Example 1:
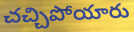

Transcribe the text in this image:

చచ్చిపోయారు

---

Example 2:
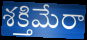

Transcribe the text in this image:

శక్తిమేరా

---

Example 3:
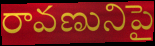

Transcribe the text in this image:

రావణునిపై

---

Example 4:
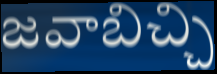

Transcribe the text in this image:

జవాబిచ్చి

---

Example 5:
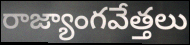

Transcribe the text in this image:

రాజ్యాంగవేత్తలు